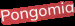
Pongomia